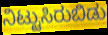
ನಿಟ್ಟುಸಿರುಬಿಡು